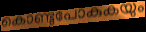
കൊണ്ടുപോകുകയും